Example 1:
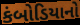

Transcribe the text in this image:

કંબોડિયાનો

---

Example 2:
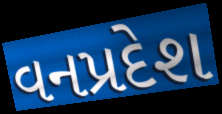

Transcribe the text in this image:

વનપ્રદેશ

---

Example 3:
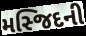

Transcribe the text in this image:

મસ્જિદની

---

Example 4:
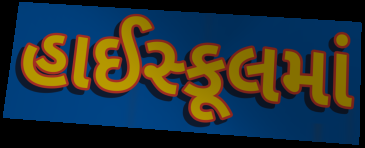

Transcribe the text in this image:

હાઈસ્કૂલમાં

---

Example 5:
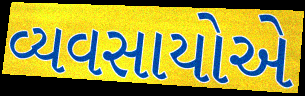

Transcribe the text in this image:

વ્યવસાયોએ